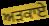
ਅੜਕਾਏ